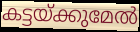
കട്ടയ്ക്കുമേൽ